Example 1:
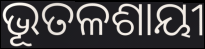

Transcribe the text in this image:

ଭୂତଳଶାୟୀ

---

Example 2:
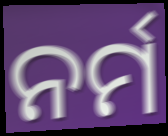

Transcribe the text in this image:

ନର୍ମ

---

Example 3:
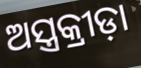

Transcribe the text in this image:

ଅସ୍ତ୍ରକ୍ରୀଡ଼ା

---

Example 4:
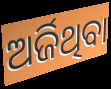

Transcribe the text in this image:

ଅର୍ଜିଥିବା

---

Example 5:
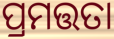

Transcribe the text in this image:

ପ୍ରମତ୍ତତା